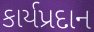
કાર્યપ્રદાન